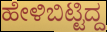
ಹೇಳಿಬಿಟ್ಟಿದ್ದ